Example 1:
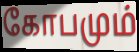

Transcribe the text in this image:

கோபமும்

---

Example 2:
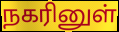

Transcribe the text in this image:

நகரினுள்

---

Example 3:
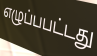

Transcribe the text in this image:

எழுப்பபட்டது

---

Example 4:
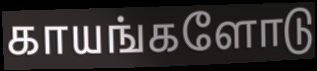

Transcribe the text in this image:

காயங்களோடு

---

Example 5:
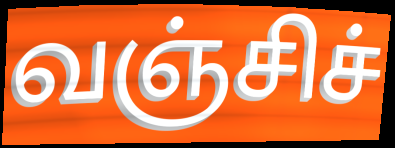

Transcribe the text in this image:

வஞ்சிச்